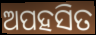
ଅପହସିତ